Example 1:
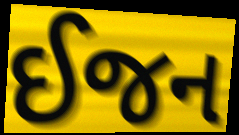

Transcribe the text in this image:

ઈજન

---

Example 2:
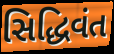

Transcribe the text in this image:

સિદ્ધિવંત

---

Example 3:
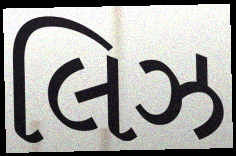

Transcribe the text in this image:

લિઝ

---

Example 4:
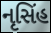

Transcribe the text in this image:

નૃસિંહ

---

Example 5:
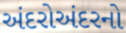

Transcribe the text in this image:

અંદરોઅંદરનો